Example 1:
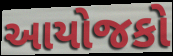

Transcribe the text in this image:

આયોજકો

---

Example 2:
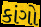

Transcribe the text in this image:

કાંગો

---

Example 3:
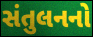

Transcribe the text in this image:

સંતુલનનો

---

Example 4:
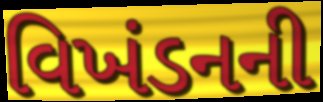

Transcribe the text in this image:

વિખંડનની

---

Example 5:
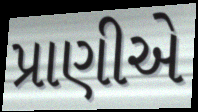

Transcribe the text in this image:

પ્રાણીએ